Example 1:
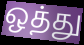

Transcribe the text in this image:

ஒத்து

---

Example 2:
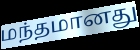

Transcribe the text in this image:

மந்தமானது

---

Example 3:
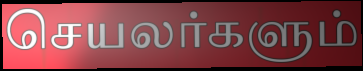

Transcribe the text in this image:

செயலர்களும்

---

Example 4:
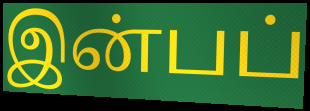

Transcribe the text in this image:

இன்பப்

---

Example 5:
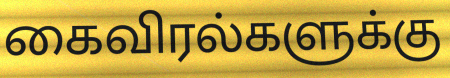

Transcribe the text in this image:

கைவிரல்களுக்கு